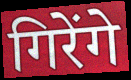
गिरेंगे